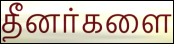
தீனர்களை